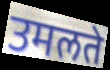
उमलते